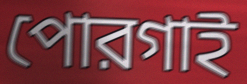
পোরগাই